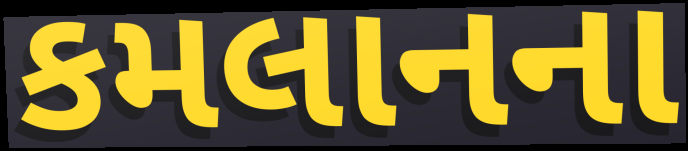
કમલાનના